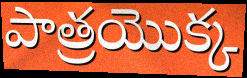
పాత్రయొక్క